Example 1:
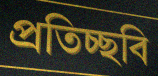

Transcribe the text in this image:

প্ৰতিচ্ছবি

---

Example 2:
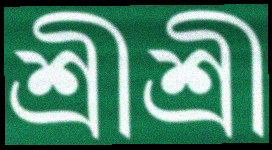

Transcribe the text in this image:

শ্ৰীশ্ৰী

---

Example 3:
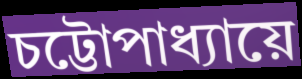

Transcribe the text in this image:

চট্টোপাধ্যায়ে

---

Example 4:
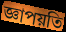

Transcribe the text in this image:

জ্ঞাপয়তি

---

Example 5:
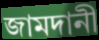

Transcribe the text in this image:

জামদানী